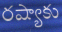
రష్యాకు